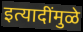
इत्यादींमुळे